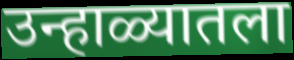
उन्हाळ्यातला